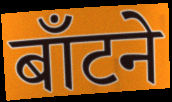
बाँटने